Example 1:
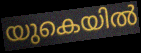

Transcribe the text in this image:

യുകെയിൽ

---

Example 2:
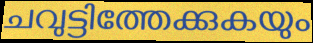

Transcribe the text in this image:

ചവുട്ടിത്തേക്കുകയും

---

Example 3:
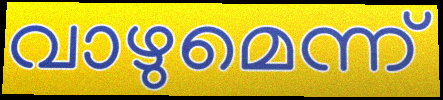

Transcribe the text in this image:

വാഴുമെന്ന്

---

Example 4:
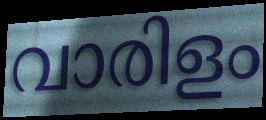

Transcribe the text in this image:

വാരിളം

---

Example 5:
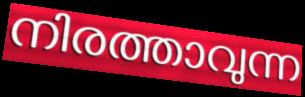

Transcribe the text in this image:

നിരത്താവുന്ന